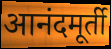
आनंदमूर्ती